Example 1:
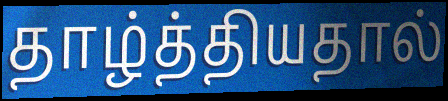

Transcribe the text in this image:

தாழ்த்தியதால்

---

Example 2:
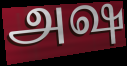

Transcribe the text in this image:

அஷ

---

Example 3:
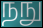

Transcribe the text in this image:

நநு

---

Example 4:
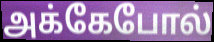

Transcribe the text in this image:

அக்கேபோல்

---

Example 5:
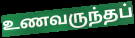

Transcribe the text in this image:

உணவருந்தப்